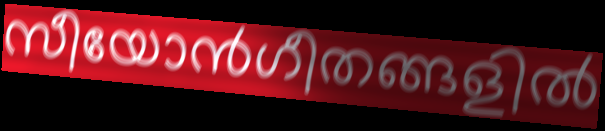
സീയോൻഗീതങ്ങളിൽ